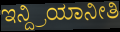
ಇನ್ದ್ರಿಯಾನೀತಿ